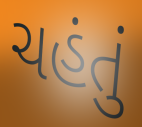
ચહંતું